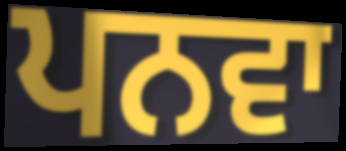
ਪਨਵਾ